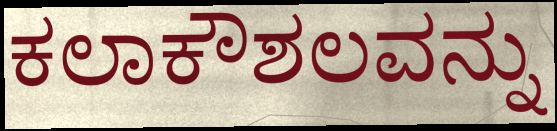
ಕಲಾಕೌಶಲವನ್ನು